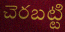
చెరబట్టి